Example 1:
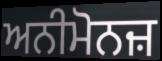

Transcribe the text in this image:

ਅਨੀਮੋਨਜ਼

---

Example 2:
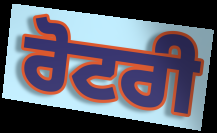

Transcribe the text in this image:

ਰੋਟਰੀ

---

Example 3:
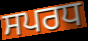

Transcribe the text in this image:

ਸਪਰਧ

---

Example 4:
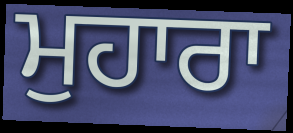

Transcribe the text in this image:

ਮੁਹਾਰਾ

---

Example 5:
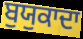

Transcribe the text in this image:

ਬੁਯੁਕਾਦਾ